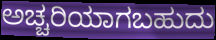
ಅಚ್ಚರಿಯಾಗಬಹುದು